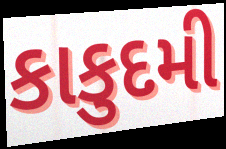
કાકુદમી